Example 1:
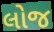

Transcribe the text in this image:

લોજ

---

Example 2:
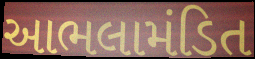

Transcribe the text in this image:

આભલામંડિત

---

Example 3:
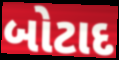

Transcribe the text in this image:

બોટાદ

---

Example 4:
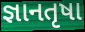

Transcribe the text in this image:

જ્ઞાનતૃષા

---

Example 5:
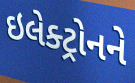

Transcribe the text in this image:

ઇલેક્ટ્રોનને